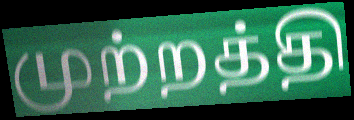
முற்றத்தி